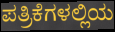
ಪತ್ರಿಕೆಗಳಲ್ಲಿಯ